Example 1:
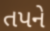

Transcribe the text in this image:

તપને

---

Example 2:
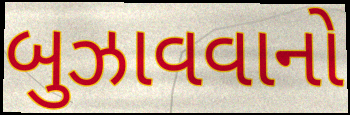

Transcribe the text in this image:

બુઝાવવાનો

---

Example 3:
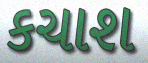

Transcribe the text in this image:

કચાશ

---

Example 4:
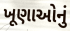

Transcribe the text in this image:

ખૂણાઓનું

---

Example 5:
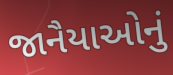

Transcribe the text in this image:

જાનૈયાઓનું